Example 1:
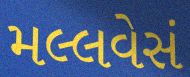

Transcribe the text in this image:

મલ્લવેસં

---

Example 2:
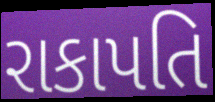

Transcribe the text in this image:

રાકાપતિ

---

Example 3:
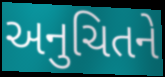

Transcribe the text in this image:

અનુચિતને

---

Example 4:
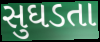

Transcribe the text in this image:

સુઘડતા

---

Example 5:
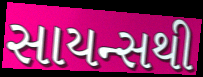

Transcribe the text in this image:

સાયન્સથી